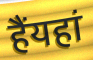
हैंयहां